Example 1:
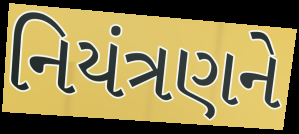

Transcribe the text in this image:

નિયંત્રણને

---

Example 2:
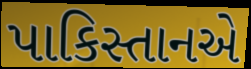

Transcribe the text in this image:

પાકિસ્તાનએ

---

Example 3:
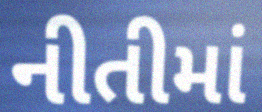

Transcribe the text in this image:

નીતીમાં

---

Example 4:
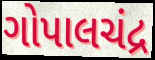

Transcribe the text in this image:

ગોપાલચંદ્ર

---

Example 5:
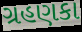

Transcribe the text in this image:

ગ્રહણકા